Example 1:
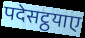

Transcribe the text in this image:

पदेसट्ठयाए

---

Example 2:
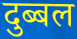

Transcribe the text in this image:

दुब्बल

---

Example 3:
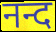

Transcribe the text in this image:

नन्द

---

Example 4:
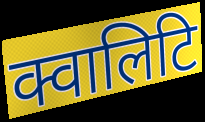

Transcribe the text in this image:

क्वालिटि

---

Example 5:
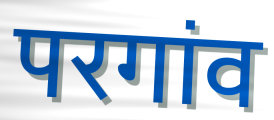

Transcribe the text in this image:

परगांव